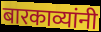
बारकाव्यांनी